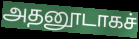
அதனூடாகச்